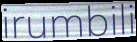
irumbili